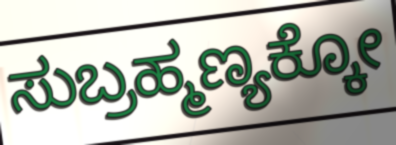
ಸುಬ್ರಹ್ಮಣ್ಯಕ್ಕೋ